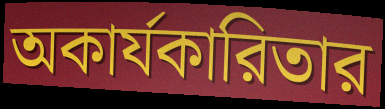
অকার্যকারিতার